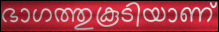
ഭാഗത്തുകൂടിയാണ്